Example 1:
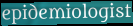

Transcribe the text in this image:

epidemiologist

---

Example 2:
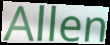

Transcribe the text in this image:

Allen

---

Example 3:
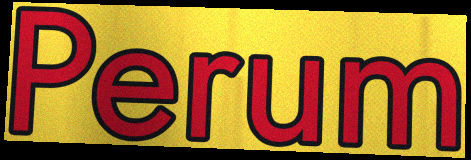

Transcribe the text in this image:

Perum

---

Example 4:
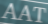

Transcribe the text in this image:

AAT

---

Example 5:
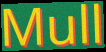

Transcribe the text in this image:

Mull